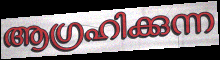
ആഗ്രഹിക്കുന്ന